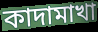
কাদামাখা